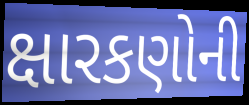
ક્ષારકણોની